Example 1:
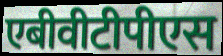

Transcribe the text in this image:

एबीवीटीपीएस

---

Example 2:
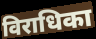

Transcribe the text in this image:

विराधिका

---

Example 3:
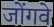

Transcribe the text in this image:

जोंगवे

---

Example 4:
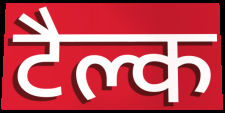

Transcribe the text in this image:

टैल्क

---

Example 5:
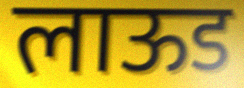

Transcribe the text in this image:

लाऊड